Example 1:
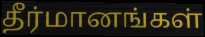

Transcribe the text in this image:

தீர்மானங்கள்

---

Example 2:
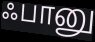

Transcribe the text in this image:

ஃபானு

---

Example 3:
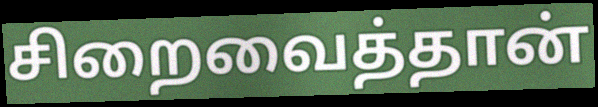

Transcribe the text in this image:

சிறைவைத்தான்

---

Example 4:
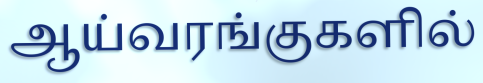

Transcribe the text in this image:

ஆய்வரங்குகளில்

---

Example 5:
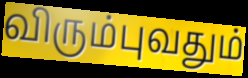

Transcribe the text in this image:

விரும்புவதும்